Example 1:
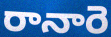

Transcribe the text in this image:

రానారె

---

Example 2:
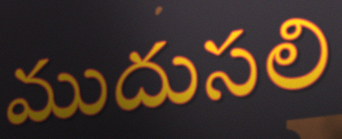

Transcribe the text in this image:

ముదుసలి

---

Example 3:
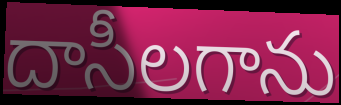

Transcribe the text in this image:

దాసీలగాను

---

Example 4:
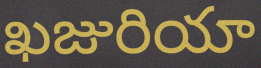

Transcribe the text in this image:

ఖజురియా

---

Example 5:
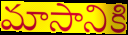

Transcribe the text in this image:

మాసానికి